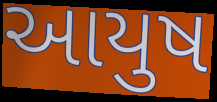
આયુષ